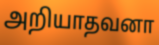
அறியாதவனா